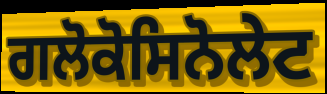
ਗਲੋਕੋਸਿਨੋਲੇਟ